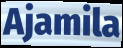
Ajamila